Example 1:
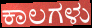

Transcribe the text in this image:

ಕಾಲಗಳು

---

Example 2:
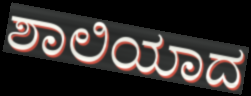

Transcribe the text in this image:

ಶಾಲಿಯಾದ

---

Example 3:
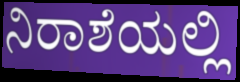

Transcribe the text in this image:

ನಿರಾಶೆಯಲ್ಲಿ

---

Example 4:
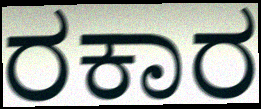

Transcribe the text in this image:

ರಕಾರ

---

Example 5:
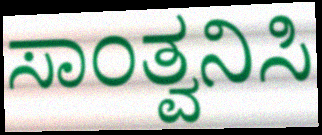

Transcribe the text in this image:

ಸಾಂತ್ವನಿಸಿ